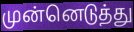
முன்னெடுத்து